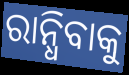
ରାନ୍ଧିବାକୁ